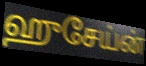
ஹுசேய்ன்